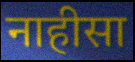
नाहीसा